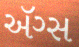
ઍગ્સ